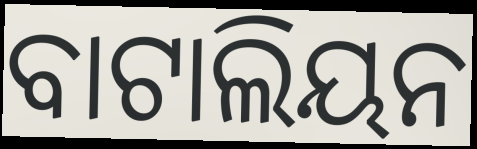
ବାଟାଲିୟନ